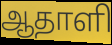
ஆதாளி